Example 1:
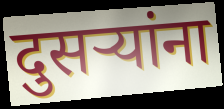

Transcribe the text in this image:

दुसऱ्यांना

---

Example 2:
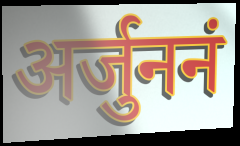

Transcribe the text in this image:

अर्जुननं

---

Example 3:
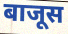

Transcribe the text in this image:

बाजूस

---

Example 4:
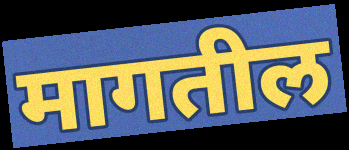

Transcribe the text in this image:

मागतील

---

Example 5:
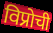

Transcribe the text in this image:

विप्रोची